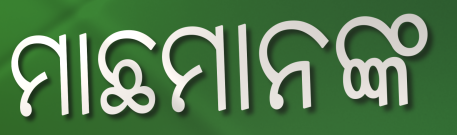
ମାଛମାନଙ୍କ